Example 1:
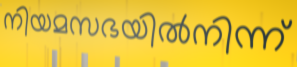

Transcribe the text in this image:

നിയമസഭയിൽനിന്ന്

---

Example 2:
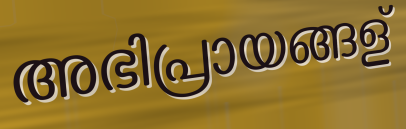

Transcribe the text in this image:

അഭിപ്രായങ്ങള്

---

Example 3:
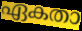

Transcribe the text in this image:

ഏകതാ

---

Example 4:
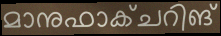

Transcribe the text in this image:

മാനുഫാക്ചറിങ്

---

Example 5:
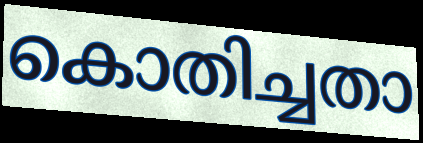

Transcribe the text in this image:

കൊതിച്ചതാ